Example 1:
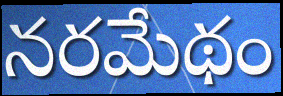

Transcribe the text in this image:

నరమేథం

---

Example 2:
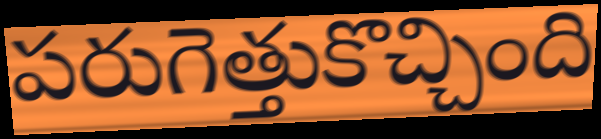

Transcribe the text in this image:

పరుగెత్తుకొచ్చింది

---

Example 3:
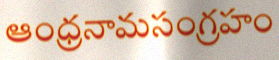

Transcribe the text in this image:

ఆంధ్రనామసంగ్రహం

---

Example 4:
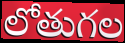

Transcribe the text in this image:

లోతుగల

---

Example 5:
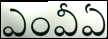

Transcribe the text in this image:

ఎంవీఏ